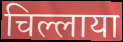
चिल्लाया